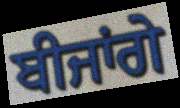
ਬੀਜਾਂਗੇ